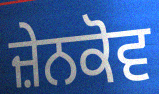
ਜ਼ੇਨਕੋਵ